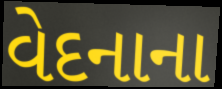
વેદનાના